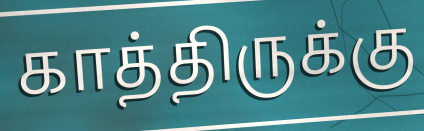
காத்திருக்கு